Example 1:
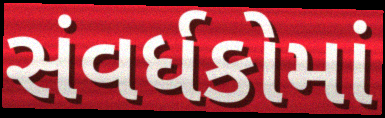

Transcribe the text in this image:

સંવર્ધકોમાં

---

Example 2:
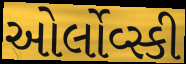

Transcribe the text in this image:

ઓર્લોવ્સ્કી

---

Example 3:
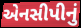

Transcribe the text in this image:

એનસીપીનું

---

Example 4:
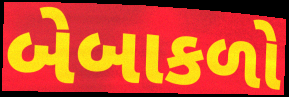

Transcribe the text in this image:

બેબાકળો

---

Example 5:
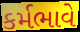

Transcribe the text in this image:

કર્મભાવે